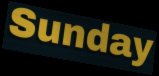
Sunday